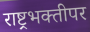
राष्ट्रभक्तीपर